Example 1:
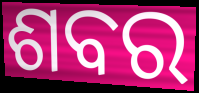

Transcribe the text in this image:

ଶବର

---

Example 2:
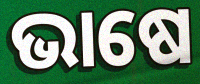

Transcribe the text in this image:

ଭାଷେ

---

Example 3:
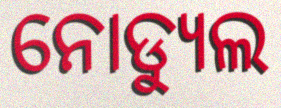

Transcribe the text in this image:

ନୋଡ୍ୟୁଲ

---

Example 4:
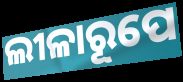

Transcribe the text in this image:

ଲୀଳାରୂପେ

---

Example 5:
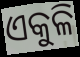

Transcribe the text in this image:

ଏକୁଳି